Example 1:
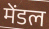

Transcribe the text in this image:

मेंडल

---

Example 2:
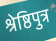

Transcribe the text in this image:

श्रेष्ठिपुत्र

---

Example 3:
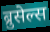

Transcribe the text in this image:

ब्रुसेल्स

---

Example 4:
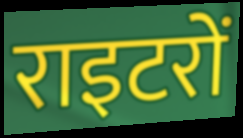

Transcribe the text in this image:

राइटरों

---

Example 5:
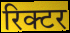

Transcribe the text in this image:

रिक्टर